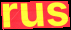
rus